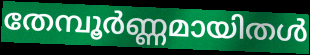
തേമ്പൂർണ്ണമായിതൾ